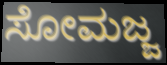
ಸೋಮಜ್ಜ